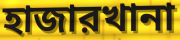
হাজারখানা